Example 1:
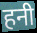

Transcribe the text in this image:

हनी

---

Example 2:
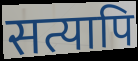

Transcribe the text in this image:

सत्यापि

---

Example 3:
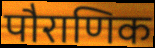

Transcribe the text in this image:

पौराणिक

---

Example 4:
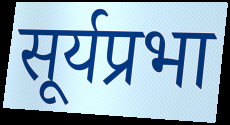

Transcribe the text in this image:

सूर्यप्रभा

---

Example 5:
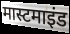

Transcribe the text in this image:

मास्टमाइंड